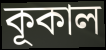
কূকাল